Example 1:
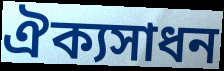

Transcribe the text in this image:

ঐক্যসাধন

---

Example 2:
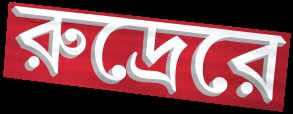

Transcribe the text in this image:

রুদ্রেরে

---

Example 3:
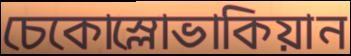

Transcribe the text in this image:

চেকোস্লোভাকিয়ান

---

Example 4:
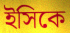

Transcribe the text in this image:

ইসিকে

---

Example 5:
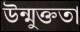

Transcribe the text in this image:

উন্মুক্ততা